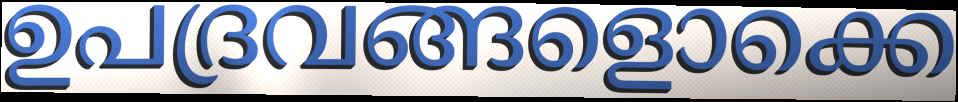
ഉപദ്രവങ്ങളൊക്കെ